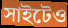
সাইটেও